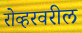
रोव्हरवरील